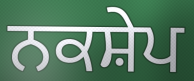
ਨਕਸ਼ੇਪ